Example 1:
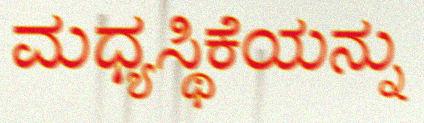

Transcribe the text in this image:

ಮಧ್ಯಸ್ಥಿಕೆಯನ್ನು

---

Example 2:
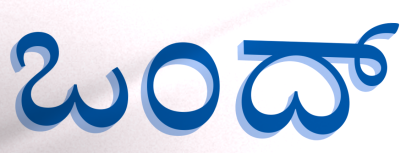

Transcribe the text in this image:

ಒಂದ್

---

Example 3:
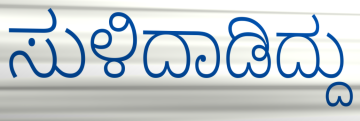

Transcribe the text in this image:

ಸುಳಿದಾಡಿದ್ದು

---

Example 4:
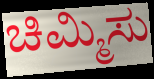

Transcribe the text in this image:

ಚಿಮ್ಮಿಸು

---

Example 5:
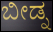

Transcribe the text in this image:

ಬೀಡ್ನ